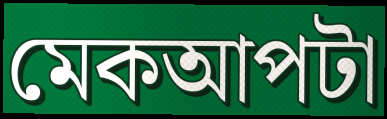
মেকআপটা